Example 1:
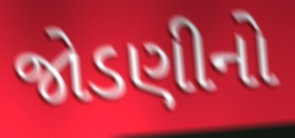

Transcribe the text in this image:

જોડણીનો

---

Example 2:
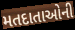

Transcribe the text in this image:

મતદાતાઓની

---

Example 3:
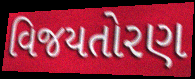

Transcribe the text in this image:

વિજયતોરણ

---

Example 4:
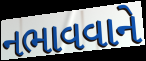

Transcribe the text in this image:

નભાવવાને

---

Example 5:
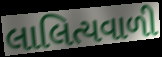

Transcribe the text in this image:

લાલિત્યવાળી